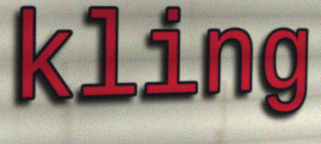
kling